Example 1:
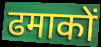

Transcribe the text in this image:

ढमाकों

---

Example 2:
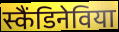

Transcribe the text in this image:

स्कैंडिनेविया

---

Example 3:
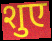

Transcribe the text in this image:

शुए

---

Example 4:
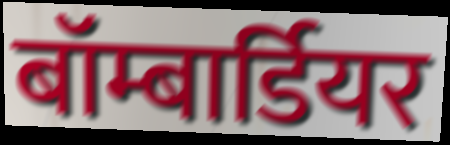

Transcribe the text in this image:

बॉम्बार्डियर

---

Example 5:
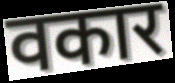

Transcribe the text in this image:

वकार